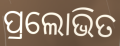
ପ୍ରଲୋଭିତ